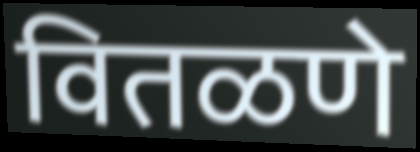
वितळणे